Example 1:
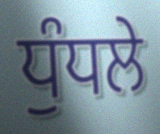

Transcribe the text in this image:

ਧੁੰਧਲੇ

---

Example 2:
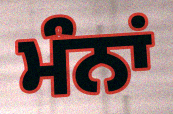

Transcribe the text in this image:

ਮੰਨਾਂ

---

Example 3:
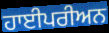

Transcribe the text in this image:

ਹਾਈਪਰੀਅਨ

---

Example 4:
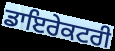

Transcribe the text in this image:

ਡਾਇਰੇਕਟਰੀ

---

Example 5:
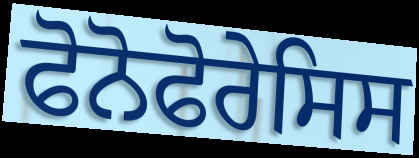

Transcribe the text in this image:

ਫੋਨੋਫੋਰੇਸਿਸ